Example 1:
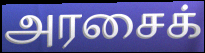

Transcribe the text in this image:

அரசைக்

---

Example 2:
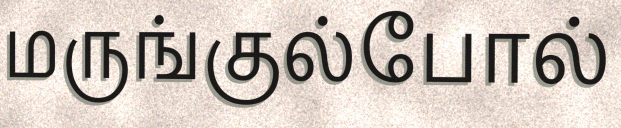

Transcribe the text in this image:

மருங்குல்போல்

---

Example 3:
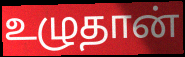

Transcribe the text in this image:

உழுதான்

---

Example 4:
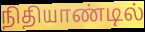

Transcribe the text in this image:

நிதியாண்டில்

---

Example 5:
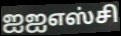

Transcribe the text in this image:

ஐஐஎஸ்சி